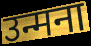
उन्मना